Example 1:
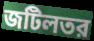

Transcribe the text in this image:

জটিলতর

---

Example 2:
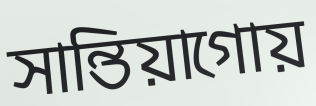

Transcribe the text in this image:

সান্তিয়াগোয়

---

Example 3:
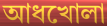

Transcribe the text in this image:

আধখোলা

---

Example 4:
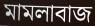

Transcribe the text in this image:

মামলাবাজ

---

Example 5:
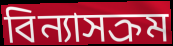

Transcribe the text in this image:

বিন্যাসক্রম